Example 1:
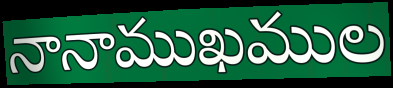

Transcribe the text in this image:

నానాముఖముల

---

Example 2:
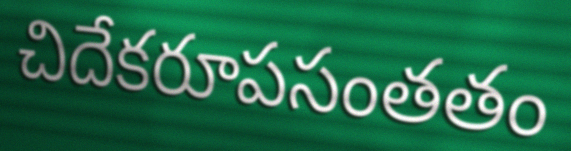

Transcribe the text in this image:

చిదేకరూపసంతతం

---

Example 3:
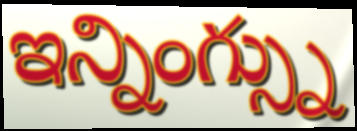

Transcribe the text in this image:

ఇన్నింగ్స్ను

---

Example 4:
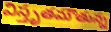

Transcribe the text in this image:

విస్తృతమౌతున్న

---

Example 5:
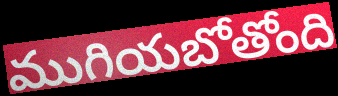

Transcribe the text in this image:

ముగియబోతోంది